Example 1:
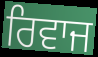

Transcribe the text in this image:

ਰਿਵਾਜ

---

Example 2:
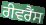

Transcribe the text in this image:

ਰੀਵਰੈਂਸ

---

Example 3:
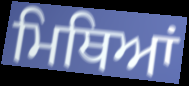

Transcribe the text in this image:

ਮਿਥਿਆਂ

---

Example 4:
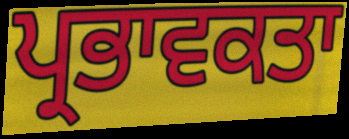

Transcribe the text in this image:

ਪ੍ਰਭਾਵਕਤਾ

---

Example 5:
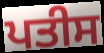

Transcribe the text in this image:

ਪਤੀਸ